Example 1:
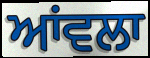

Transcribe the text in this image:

ਆਂਵਲਾ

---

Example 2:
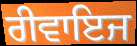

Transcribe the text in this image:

ਰੀਵਾਇਜ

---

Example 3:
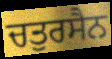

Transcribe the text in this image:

ਚਤੁਰਸੈਨ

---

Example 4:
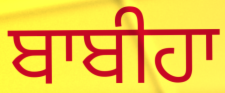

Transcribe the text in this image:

ਬਾਬੀਹਾ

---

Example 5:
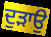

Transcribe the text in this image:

ਦੁੜਾਉ